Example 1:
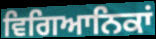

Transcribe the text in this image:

ਵਿਗਿਆਨਿਕਾਂ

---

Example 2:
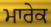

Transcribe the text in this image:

ਮਾਰੇਕ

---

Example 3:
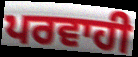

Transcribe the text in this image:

ਪਰਵਾਹੀ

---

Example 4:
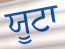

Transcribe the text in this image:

ਯੂਟਾ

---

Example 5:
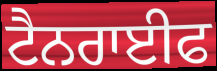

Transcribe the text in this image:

ਟੈਨਰਾਈਫ